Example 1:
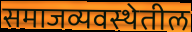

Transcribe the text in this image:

समाजव्यवस्थेतील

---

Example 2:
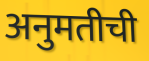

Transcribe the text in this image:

अनुमतीची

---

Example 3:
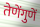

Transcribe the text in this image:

तेणेंगुणें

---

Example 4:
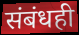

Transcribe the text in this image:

संबंधही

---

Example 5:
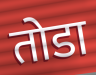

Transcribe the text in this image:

तोडा